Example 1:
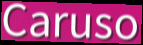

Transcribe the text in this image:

Caruso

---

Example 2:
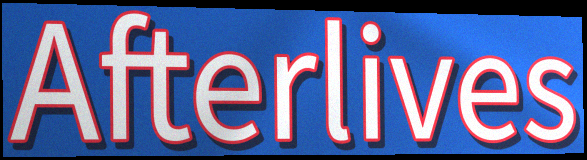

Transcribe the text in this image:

Afterlives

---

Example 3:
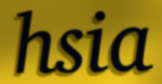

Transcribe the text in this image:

hsia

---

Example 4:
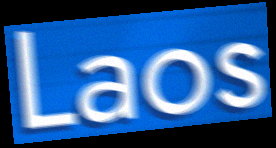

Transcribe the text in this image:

Laos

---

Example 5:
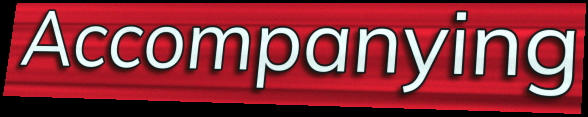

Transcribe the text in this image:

Accompanying